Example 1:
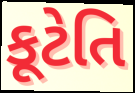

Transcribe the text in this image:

કૂટેતિ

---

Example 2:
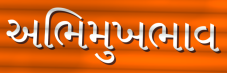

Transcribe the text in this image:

અભિમુખભાવ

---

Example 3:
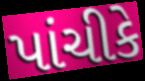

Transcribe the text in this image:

પાંચીકે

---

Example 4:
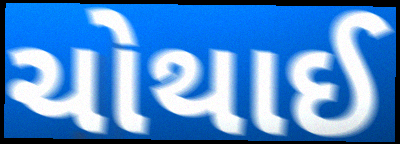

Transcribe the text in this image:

ચોથાઈ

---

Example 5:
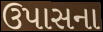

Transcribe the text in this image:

ઉપાસના